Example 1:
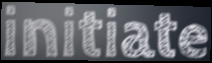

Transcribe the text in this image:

initiate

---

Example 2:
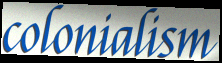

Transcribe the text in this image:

colonialism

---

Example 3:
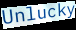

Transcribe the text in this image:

Unlucky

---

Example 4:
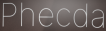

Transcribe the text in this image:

Phecda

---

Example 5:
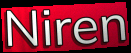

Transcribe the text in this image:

Niren